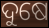
ଦୁଷେ